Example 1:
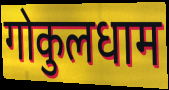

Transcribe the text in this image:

गोकुलधाम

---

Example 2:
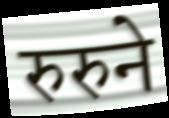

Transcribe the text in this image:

रुरुने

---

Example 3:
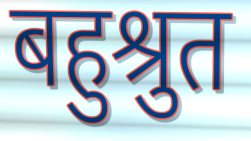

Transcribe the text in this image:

बहुश्रुत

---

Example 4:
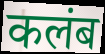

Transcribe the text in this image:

कलंब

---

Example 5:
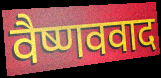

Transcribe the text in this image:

वैष्णववाद